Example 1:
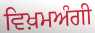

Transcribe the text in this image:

ਵਿਖ਼ਮਅੰਗੀ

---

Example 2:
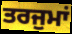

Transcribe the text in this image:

ਤਰਜੁਮਾਂ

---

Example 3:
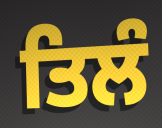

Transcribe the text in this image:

ਤਿਲੰ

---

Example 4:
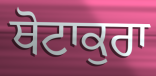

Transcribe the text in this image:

ਥੋਟਾਕੁਰਾ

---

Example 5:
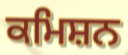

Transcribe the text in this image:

ਕਮਿਸ਼ਨ